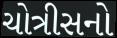
ચોત્રીસનો